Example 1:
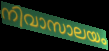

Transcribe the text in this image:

നിവാസാലയം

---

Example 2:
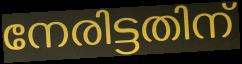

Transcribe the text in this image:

നേരിട്ടതിന്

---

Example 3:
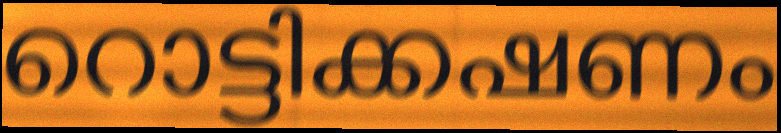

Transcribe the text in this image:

റൊട്ടിക്കഷണം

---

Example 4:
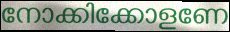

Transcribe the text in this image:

നോക്കിക്കോളണേ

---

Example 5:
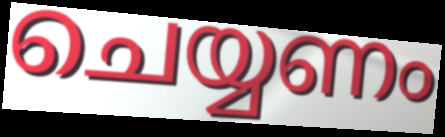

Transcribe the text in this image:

ചെയ്യണം